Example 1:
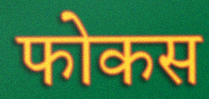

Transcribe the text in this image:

फोकस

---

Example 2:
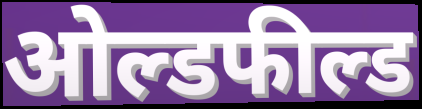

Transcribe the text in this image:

ओल्डफील्ड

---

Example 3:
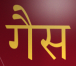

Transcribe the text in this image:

गैस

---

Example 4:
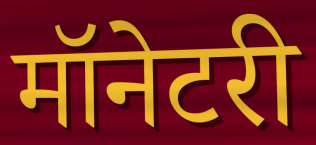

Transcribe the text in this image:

मॉनेटरी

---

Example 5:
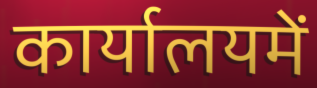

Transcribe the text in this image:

कार्यालयमें